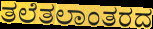
ತಲೆತಲಾಂತರದ